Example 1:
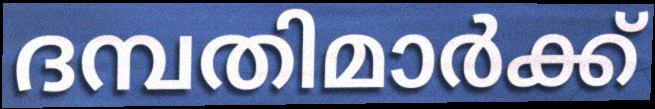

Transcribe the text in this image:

ദമ്പതിമാർക്ക്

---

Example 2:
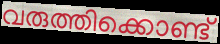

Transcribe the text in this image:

വരുത്തിക്കൊണ്ട്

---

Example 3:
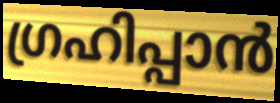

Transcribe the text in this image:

ഗ്രഹിപ്പാൻ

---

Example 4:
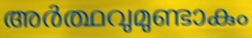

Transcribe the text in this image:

അർത്ഥവുമുണ്ടാകും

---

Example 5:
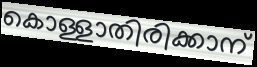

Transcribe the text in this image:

കൊള്ളാതിരിക്കാന്